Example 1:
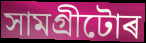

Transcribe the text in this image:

সামগ্ৰীটোৰ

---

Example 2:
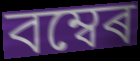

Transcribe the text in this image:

বম্বেৰ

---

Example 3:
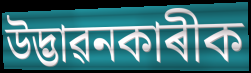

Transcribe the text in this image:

উদ্ভাৱনকাৰীক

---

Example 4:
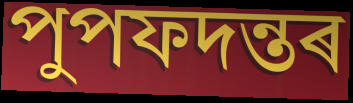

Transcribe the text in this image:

পুপফদন্তৰ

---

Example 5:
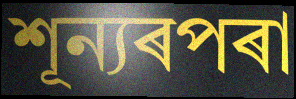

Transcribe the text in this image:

শূন্যৰপৰা